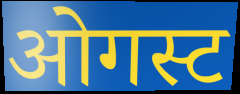
ओगस्ट